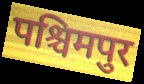
पश्चिमपुर